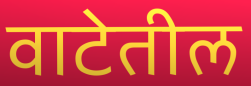
वाटेतील